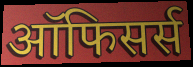
ऑफिसर्स